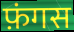
फ़ंगस